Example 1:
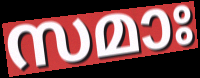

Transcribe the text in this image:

സമാഃ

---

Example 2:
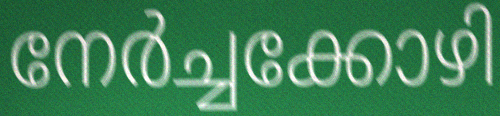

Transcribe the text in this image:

നേർച്ചക്കോഴി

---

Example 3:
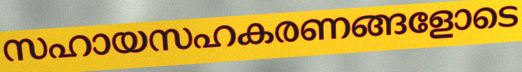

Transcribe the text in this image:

സഹായസഹകരണങ്ങളോടെ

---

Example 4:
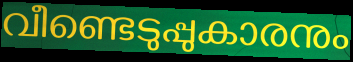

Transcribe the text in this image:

വീണ്ടെടുപ്പുകാരനും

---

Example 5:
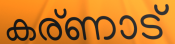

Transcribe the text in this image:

കര്ണാട്